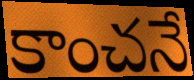
కాంచనే